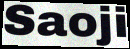
Saoji